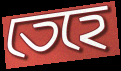
তেহে